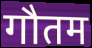
गौतम